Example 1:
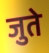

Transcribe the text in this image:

जुते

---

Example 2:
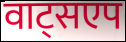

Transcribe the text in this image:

वाट्सएप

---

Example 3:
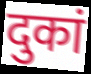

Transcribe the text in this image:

दुकां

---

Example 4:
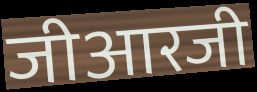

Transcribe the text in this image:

जीआरजी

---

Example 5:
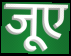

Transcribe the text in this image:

जूए